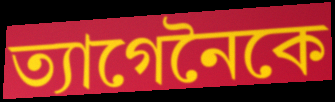
ত্যাগেনৈকে